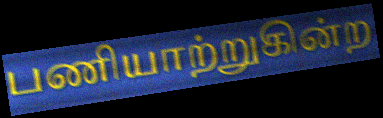
பணியாற்றுகின்ற